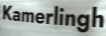
Kamerlingh